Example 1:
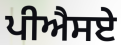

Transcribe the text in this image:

ਪੀਐਸਏ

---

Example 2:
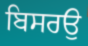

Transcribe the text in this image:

ਬਿਸਰਉ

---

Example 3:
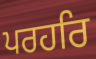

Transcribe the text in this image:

ਪਰਹਰਿ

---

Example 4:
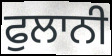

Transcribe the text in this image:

ਫੁਲਾਨੀ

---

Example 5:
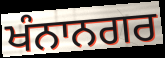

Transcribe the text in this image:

ਖੰਨਾਨਗਰ